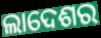
ଲାଦେଶର